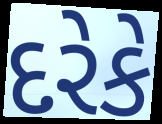
દરેકે